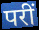
परीं